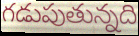
గడుపుతున్నది